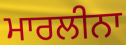
ਮਾਰਲੀਨਾ